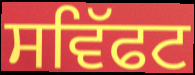
ਸਵਿੱਫਟ